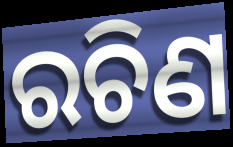
ରଚିଣ